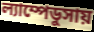
ল্যাম্পেডুসায়